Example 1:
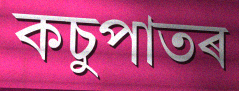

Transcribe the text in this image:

কচুপাতৰ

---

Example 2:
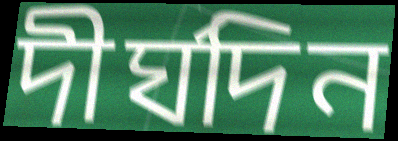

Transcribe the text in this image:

দীৰ্ঘদিন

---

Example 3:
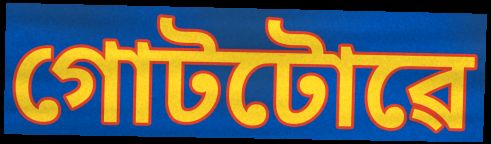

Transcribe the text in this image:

গোটটোৱে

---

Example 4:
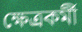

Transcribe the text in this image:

ক্ষেত্ৰকৰ্মী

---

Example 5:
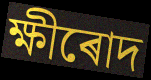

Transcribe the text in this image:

ক্ষীৰোদ